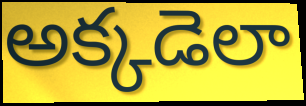
అక్కడెలా